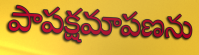
పాపక్షమాపణను